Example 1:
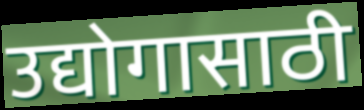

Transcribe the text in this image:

उद्योगासाठी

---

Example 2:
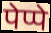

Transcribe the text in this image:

पेप्पे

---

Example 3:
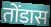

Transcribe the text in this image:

तोंडास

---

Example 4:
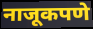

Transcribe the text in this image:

नाजूकपणे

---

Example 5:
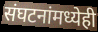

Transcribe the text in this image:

संघटनांमध्येही